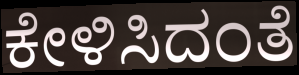
ಕೇಳಿಸಿದಂತೆ